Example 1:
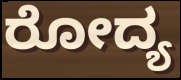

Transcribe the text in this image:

ರೋದ್ಯ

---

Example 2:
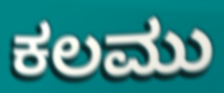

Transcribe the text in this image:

ಕಲಮು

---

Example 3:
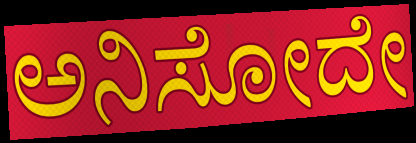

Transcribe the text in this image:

ಅನಿಸೋದೇ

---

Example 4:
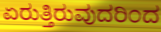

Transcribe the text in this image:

ಏರುತ್ತಿರುವುದರಿಂದ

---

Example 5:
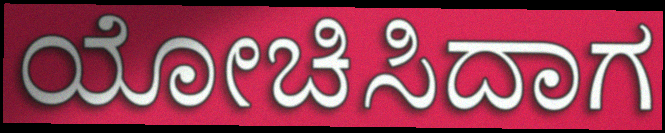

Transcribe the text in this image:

ಯೋಚಿಸಿದಾಗ